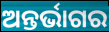
ଅନ୍ତର୍ଭାଗର